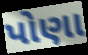
પોણા